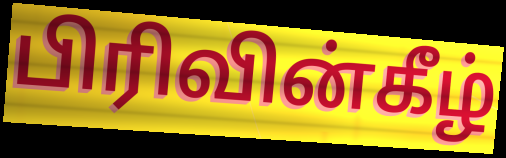
பிரிவின்கீழ்